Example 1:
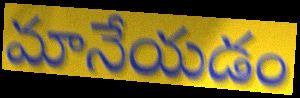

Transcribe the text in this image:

మానేయడం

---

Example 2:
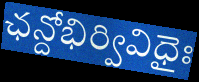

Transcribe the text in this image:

ఛన్దోభిర్వివిధైః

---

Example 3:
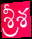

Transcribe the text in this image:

శ్రీశ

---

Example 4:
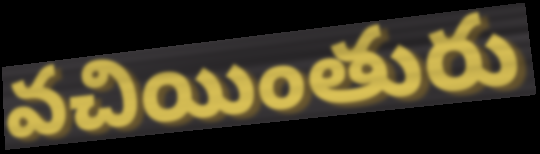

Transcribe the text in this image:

వచియింతురు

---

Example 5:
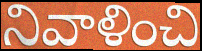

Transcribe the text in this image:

నివాళించి